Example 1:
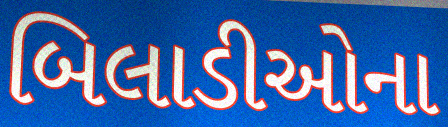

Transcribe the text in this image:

બિલાડીઓના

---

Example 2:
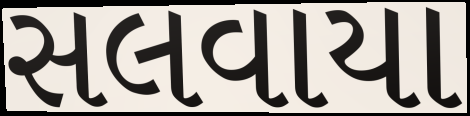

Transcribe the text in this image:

સલવાયા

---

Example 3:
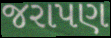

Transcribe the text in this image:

જરાપણ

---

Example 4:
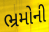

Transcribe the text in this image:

ભ્રમોની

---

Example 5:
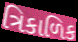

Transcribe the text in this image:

ત્રિકાળિક